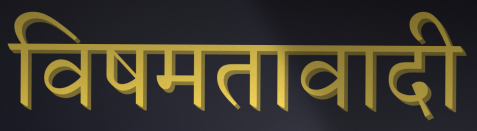
विषमतावादी